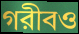
গরীবও